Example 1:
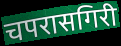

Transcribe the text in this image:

चपरासगिरी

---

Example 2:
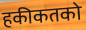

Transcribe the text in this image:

हकीकतको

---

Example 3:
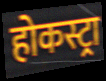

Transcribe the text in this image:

होकस्ट्रा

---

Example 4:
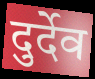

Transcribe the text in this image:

दुर्देव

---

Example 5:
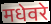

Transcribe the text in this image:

मधेवरे